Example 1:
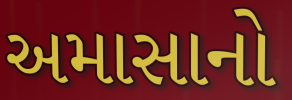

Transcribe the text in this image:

અમાસાનો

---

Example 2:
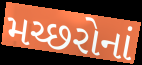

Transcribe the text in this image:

મચ્છરોનાં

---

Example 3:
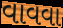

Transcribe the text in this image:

વાવવા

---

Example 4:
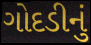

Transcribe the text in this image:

ગોદડીનું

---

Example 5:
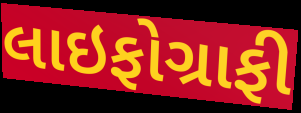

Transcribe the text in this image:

લાઇફોગ્રાફી